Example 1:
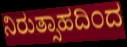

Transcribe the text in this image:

ನಿರುತ್ಸಾಹದಿಂದ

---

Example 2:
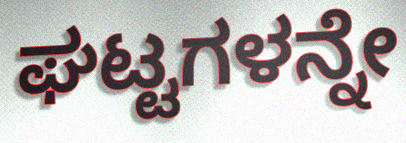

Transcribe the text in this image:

ಘಟ್ಟಗಳನ್ನೇ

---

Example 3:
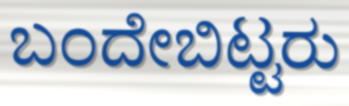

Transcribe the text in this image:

ಬಂದೇಬಿಟ್ಟರು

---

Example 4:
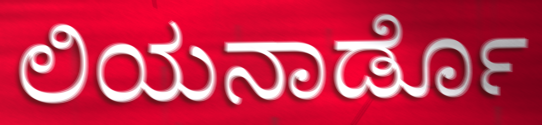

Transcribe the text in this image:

ಲಿಯನಾರ್ಡೊ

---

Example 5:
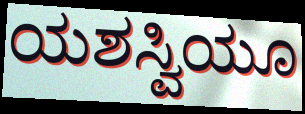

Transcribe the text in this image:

ಯಶಸ್ವಿಯೂ